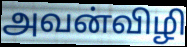
அவன்விழி